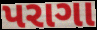
પરાગા